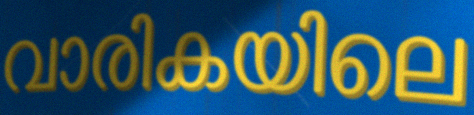
വാരികയിലെ